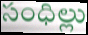
సంధిల్లు